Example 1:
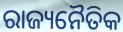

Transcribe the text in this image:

ରାଜ୍ୟନୈତିକ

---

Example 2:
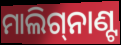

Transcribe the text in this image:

ମାଲିଗ୍‌ନାଣ୍ଟ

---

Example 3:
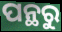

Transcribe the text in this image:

ପନ୍ଥରୁ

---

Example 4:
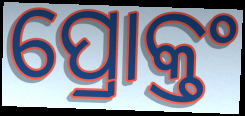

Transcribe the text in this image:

ପ୍ରୋକ୍ତଂ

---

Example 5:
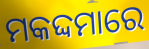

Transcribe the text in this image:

ମକଦ୍ଦମାରେ